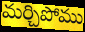
మర్చిపోము